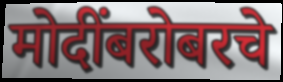
मोदींबरोबरचे